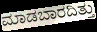
ಮಾಡಬಾರದಿತ್ತು